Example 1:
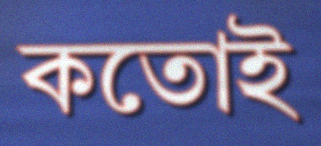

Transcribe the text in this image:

কতোই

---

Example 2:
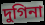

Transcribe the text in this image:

দুগিনা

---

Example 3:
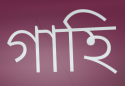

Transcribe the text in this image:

গাহি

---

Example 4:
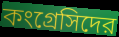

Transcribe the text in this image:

কংগ্রেসিদের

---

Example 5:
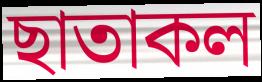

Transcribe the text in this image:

ছাতাকল